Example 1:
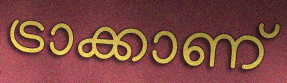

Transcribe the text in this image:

ട്രാക്കാണ്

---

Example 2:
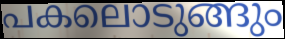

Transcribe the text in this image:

പകലൊടുങ്ങും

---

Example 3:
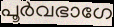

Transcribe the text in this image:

പൂർവഭാഗേ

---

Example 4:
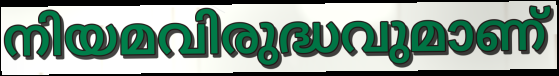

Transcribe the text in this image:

നിയമവിരുദ്ധവുമാണ്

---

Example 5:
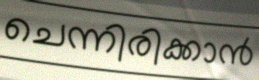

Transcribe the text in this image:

ചെന്നിരിക്കാൻ